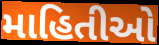
માહિતીઓ